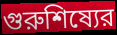
গুরুশিষ্যের